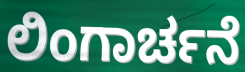
ಲಿಂಗಾರ್ಚನೆ